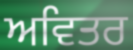
ਅਵਿਤਰ